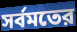
সর্বমতের